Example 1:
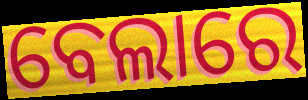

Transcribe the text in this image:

ବେଲାରେ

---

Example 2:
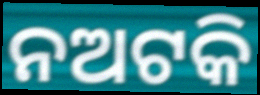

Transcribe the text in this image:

ନଅଟକି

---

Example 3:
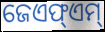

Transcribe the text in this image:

ଜେଏଫ୍ଏମ୍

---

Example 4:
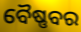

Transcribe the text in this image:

ବୈଷ୍ଣବର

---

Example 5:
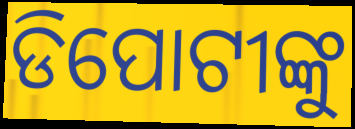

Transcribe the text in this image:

ଡିପୋଟୀଙ୍କୁ